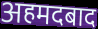
अहमदबाद